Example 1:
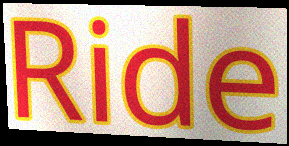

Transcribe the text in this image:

Ride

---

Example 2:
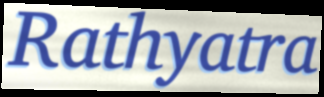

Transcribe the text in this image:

Rathyatra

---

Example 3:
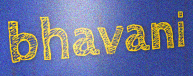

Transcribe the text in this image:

bhavani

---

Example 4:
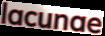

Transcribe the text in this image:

lacunae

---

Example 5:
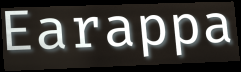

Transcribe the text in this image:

Earappa